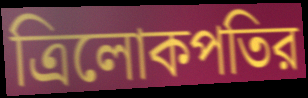
ত্রিলোকপতির